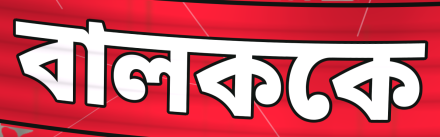
বালককে